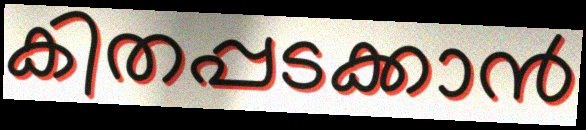
കിതപ്പടക്കാൻ